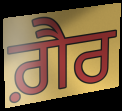
ਗ਼ੈਰ